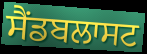
ਸੈਂਡਬਲਾਸਟ